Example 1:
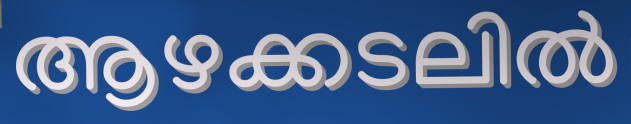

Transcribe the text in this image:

ആഴക്കടലിൽ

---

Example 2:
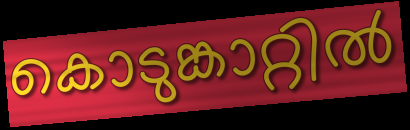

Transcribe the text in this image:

കൊടുങ്കാറ്റിൽ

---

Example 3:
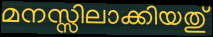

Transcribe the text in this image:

മനസ്സിലാക്കിയതു്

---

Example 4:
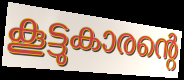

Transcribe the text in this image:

കൂട്ടുകാരന്റെ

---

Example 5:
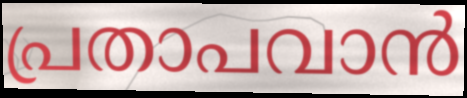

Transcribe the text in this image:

പ്രതാപവാൻ